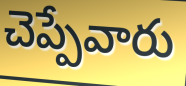
చెప్పేవారు